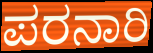
ಪರನಾರಿ